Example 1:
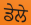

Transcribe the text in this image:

ਡੇਲੇ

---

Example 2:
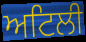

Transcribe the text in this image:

ਅਟਿਲੀ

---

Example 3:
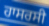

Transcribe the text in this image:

ਹਾਸਰਸੀ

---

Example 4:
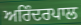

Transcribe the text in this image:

ਅਰਿੰਦਰਪਾਲ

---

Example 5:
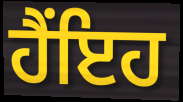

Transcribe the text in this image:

ਹੈਂਇਹ